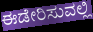
ಈಡೇರಿಸುವಲ್ಲಿ